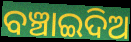
ବଞ୍ଚାଇଦିଅ